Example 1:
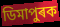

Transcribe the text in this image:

ডিমাপুৰক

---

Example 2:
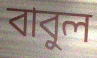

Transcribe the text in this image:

বাবুল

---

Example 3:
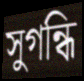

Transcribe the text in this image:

সুগন্ধি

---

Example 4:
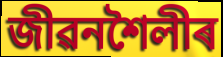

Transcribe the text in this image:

জীৱনশৈলীৰ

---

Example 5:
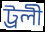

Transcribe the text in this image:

ট্ৰলী